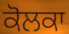
ਕੋਲਕਾ